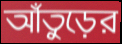
আঁতুড়ের